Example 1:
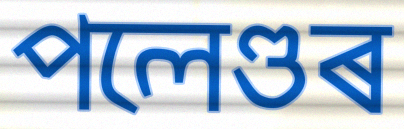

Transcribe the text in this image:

পলেণ্ডৰ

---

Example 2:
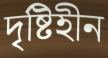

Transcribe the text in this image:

দৃষ্টিহীন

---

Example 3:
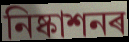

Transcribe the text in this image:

নিষ্কাশনৰ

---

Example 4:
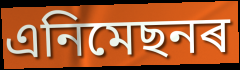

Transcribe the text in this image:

এনিমেছনৰ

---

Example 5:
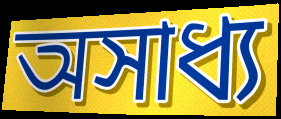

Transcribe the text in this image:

অসাধ্য